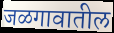
जळगावातील